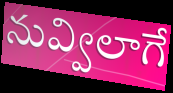
నువ్విలాగే